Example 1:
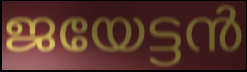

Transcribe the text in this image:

ജയേട്ടൻ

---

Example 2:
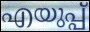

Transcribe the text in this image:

എയുപ്പ്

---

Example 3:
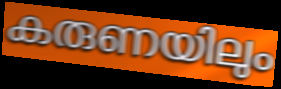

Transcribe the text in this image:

കരുണയിലും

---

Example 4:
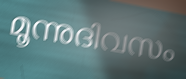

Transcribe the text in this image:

മൂന്നുദിവസം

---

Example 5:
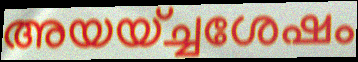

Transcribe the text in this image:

അയയ്ച്ചശേഷം